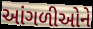
આંગળીઓને